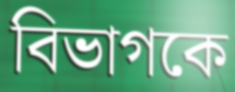
বিভাগকে